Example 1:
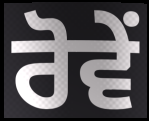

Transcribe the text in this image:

ਰੋਵੇਂ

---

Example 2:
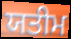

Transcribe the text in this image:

ਯਤੀਮ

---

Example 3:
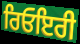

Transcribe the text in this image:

ਰਿਓਇਰੀ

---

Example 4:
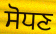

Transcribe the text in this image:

ਸੋਧਣ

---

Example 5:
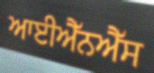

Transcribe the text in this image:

ਆਈਐੱਨਐੱਸ